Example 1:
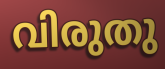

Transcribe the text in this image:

വിരുതു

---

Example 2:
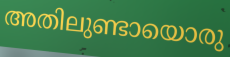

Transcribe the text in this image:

അതിലുണ്ടായൊരു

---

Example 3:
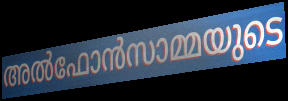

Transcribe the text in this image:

അൽഫോൻസാമ്മയുടെ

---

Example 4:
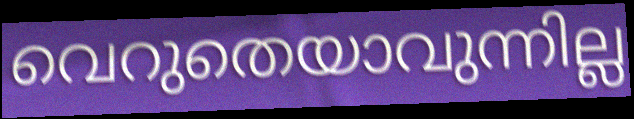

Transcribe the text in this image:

വെറുതെയാവുന്നില്ല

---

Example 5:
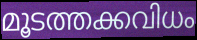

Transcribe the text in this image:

മൂടത്തക്കവിധം